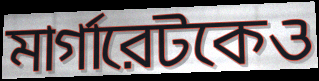
মার্গারেটকেও